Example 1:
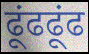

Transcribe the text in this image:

ढूंढढूंढ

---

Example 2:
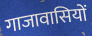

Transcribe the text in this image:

गाजावासियों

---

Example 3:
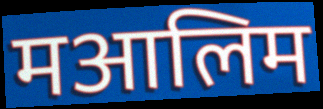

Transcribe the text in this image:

मआलिम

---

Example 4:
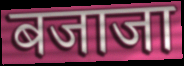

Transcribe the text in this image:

बजाजा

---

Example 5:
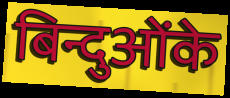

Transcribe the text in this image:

बिन्दुओंके